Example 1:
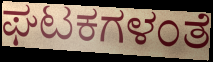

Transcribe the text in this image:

ಘಟಕಗಳಂತೆ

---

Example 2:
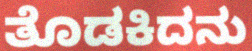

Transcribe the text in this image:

ತೊಡಕಿದನು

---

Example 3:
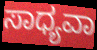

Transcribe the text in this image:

ಸಾಧ್ಯವಾ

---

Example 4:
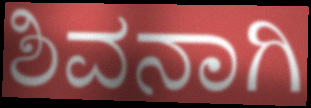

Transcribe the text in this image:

ಶಿವನಾಗಿ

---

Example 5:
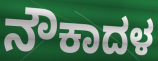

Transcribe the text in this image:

ನೌಕಾದಳ